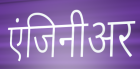
एंजिनीअर